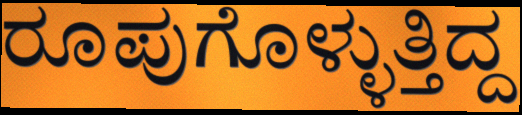
ರೂಪುಗೊಳ್ಳುತ್ತಿದ್ದ